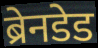
ब्रेनडेड